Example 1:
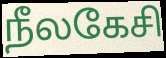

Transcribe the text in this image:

நீலகேசி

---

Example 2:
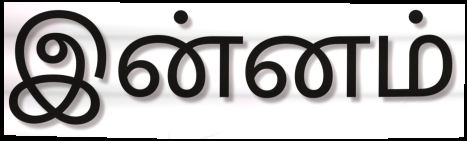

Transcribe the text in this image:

இன்னம்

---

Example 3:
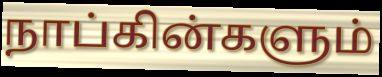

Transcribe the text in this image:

நாப்கின்களும்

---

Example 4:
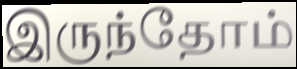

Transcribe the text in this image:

இருந்தோம்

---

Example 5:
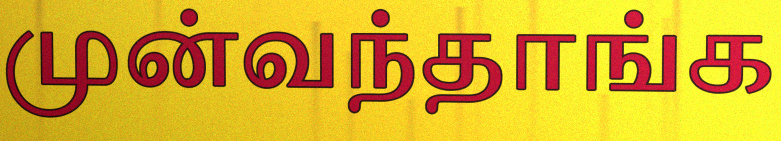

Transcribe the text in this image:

முன்வந்தாங்க